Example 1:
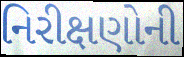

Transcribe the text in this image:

નિરીક્ષણોની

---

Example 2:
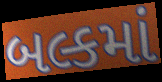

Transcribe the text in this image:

બલ્કમાં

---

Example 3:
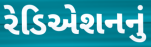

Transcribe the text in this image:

રેડિએશનનું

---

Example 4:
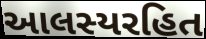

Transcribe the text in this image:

આલસ્યરહિત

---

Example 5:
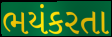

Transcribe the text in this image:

ભયંકરતા